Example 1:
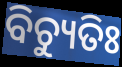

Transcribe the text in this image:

ବିଚ୍ୟୁତିଃ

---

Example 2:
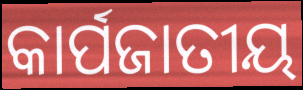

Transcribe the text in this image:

କାର୍ପଜାତୀୟ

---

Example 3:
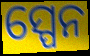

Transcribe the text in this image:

ସ୍ପେନ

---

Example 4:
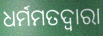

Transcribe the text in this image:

ଧର୍ମମତଦ୍ୱାରା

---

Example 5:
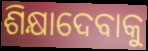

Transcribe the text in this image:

ଶିକ୍ଷାଦେବାକୁ